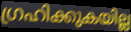
ഗ്രഹിക്കുകയില്ല